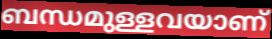
ബന്ധമുള്ളവയാണ്